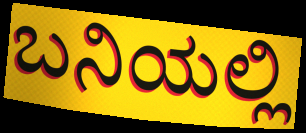
ಬನಿಯಲ್ಲಿ